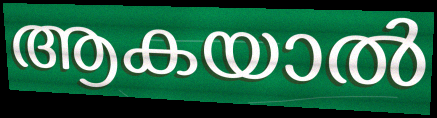
ആകയാൽ